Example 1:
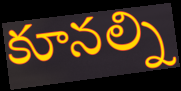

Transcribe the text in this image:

కూనల్ని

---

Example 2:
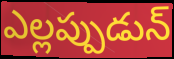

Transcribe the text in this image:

ఎల్లప్పుడున్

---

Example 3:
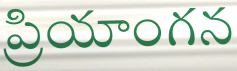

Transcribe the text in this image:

ప్రియాంగన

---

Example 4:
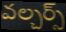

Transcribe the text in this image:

వల్చర్స్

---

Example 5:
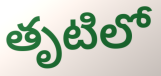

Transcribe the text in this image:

తృటిలో